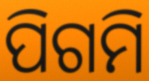
ପିଗମି